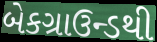
બેકગ્રાઉન્ડથી